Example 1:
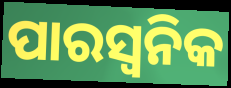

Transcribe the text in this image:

ପାରସ୍ୱନିକ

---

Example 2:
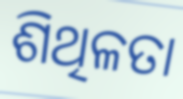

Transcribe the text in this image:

ଶିଥିଳତା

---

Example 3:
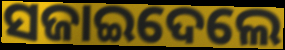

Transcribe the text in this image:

ସଜାଇଦେଲେ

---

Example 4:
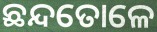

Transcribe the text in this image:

ଛନ୍ଦତୋଳେ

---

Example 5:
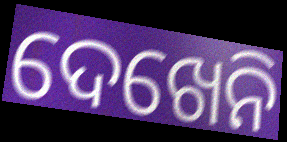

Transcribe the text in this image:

ଦେଖେନି